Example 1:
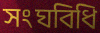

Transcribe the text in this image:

সংঘবিধি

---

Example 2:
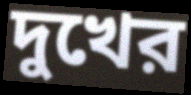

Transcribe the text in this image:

দুখের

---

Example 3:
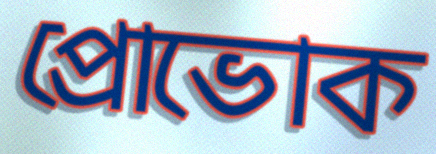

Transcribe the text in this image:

প্রোভোক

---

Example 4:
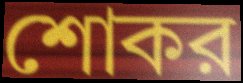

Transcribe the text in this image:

শোকর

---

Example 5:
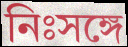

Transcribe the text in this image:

নিঃসঙ্গে